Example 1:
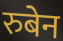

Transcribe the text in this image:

रुबेन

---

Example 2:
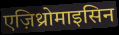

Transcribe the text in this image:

एज़िथ्रोमाइसिन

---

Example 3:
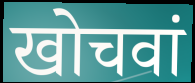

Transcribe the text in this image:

खोचवां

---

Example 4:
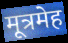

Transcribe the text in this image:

मूत्रमेह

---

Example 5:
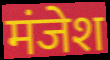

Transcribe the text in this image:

मंजेश